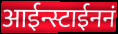
आईन्स्टाईननं